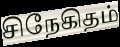
சிநேகிதம்